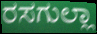
ರಸಗುಲ್ಲಾ